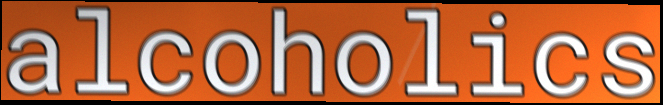
alcoholics